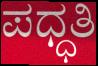
ಪಧ್ಧತಿ